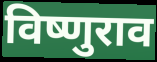
विष्णुराव